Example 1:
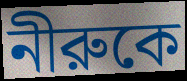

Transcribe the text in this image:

নীরুকে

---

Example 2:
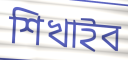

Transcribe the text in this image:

শিখাইব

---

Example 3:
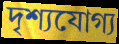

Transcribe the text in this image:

দৃশ্যযোগ্য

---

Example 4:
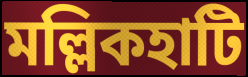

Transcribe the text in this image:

মল্লিকহাটি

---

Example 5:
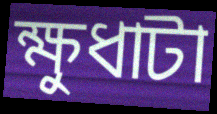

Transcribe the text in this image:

ক্ষুধাটা